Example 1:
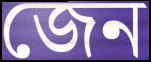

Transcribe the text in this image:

জেন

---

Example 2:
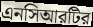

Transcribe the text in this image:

এনসিআরটির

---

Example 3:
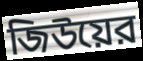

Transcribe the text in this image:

জিউয়ের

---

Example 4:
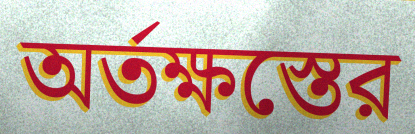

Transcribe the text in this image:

অর্তক্ষস্তের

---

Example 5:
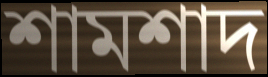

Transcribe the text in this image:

শামশাদ